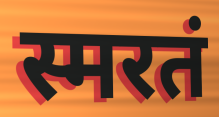
स्मरतं